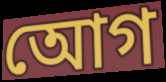
আেগ